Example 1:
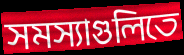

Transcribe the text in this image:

সমস্যাগুলিতে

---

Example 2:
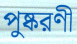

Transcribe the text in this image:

পুষ্করণী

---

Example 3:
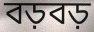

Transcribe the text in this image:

বড়বড়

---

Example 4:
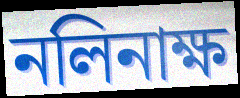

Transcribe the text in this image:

নলিনাক্ষ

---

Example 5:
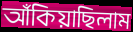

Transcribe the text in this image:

আঁকিয়াছিলাম